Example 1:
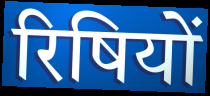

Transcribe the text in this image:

रिषियों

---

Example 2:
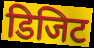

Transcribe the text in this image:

डिजिट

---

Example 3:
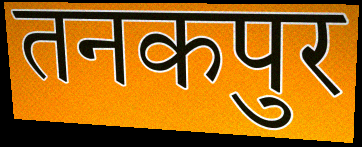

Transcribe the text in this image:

तनकपुर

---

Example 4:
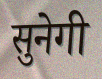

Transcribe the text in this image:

सुनेगी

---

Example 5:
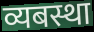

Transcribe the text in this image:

व्यबस्था